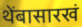
थेंबासारखं